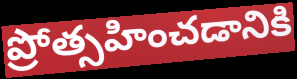
ప్రోత్సహించడానికి